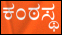
ಕಂಠಸ್ಥ